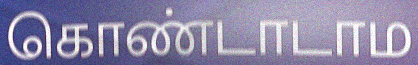
கொண்டாடாம